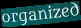
organized